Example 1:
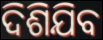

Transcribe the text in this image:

ଦିଶିଯିବ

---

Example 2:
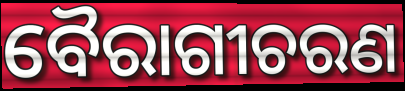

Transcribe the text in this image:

ବୈରାଗୀଚରଣ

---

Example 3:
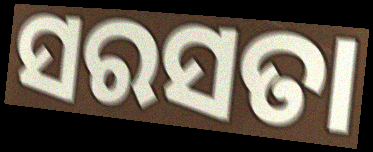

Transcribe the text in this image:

ସରସତା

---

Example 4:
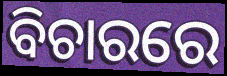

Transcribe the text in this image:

ବିଚାରରେ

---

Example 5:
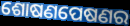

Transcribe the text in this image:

ଶୋଷଣପେଷଣର